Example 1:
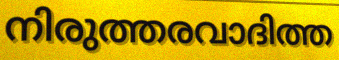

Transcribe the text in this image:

നിരുത്തരവാദിത്ത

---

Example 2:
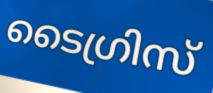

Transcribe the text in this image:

ടൈഗ്രിസ്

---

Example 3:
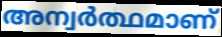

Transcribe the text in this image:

അന്വർത്ഥമാണ്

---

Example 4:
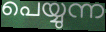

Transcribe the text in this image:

പെയ്യുന്ന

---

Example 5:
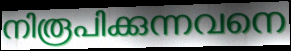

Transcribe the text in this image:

നിരൂപിക്കുന്നവനെ